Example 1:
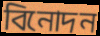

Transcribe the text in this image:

বিনোদন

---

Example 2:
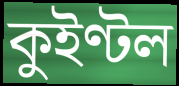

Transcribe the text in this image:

কুইণ্টল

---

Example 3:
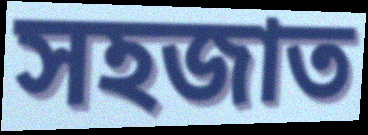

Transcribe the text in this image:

সহজাত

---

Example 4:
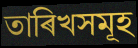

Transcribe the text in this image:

তাৰিখসমূহ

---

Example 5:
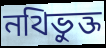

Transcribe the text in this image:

নথিভুক্ত